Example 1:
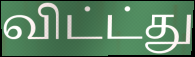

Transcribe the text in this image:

விட்ட்து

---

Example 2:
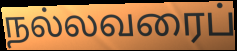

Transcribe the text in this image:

நல்லவரைப்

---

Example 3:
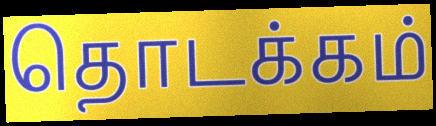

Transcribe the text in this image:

தொடக்கம்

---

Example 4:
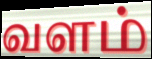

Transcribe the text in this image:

வளம்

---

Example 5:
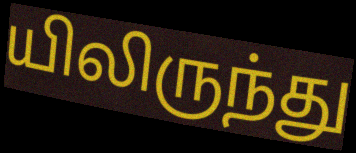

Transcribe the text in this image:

யிலிருந்து